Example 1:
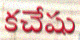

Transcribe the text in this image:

కచేషు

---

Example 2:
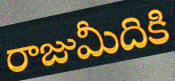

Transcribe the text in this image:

రాజుమీదికి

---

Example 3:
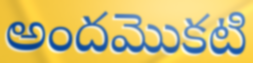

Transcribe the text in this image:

అందమొకటి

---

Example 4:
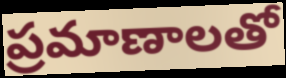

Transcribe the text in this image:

ప్రమాణాలతో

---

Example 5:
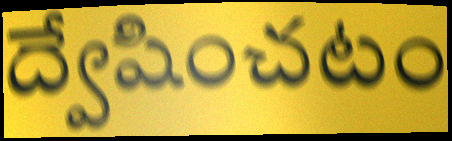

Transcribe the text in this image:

ద్వేషించటం